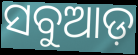
ସବୁଆଡ଼